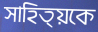
সাহিত্য়কে